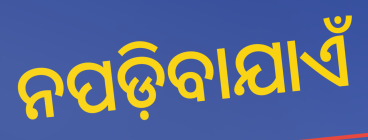
ନପଡ଼ିବାଯାଏଁ